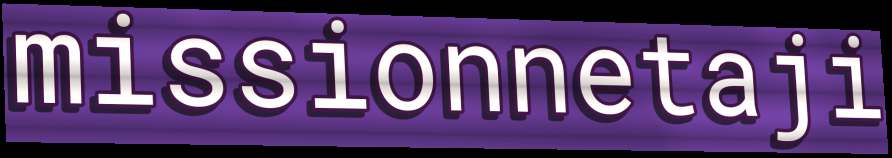
missionnetaji